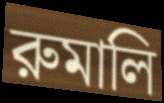
রুমালি